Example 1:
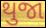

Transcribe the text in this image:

થુજા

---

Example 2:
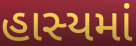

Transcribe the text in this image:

હાસ્યમાં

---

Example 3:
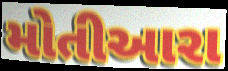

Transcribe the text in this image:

મોતીઆરા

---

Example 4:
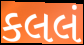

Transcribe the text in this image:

કલલં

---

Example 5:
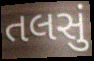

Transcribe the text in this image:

તલસું